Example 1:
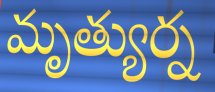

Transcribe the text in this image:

మృత్యుర్న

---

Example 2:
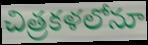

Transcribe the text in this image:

చిత్రకళలోనూ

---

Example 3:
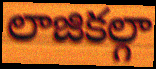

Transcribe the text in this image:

లాజికల్గా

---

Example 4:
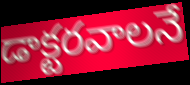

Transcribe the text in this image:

డాక్టరవాలనే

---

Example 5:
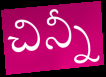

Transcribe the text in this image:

చిన్నీ